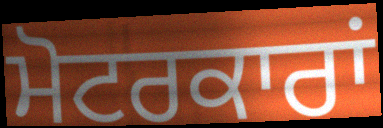
ਮੋਟਰਕਾਰਾਂ